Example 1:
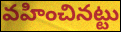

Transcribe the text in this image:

వహించినట్టు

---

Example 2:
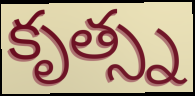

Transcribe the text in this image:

కృత్స్న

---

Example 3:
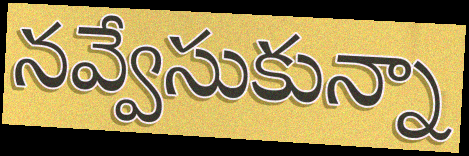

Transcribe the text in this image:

నవ్వేసుకున్నా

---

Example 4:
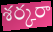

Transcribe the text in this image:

శర్కరా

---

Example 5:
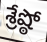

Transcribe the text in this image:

శ్రేష్ఠో